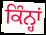
ਕਿੰਨ੍ਹਾਂ